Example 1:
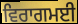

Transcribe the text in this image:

ਵਿਰਾਗਮਈ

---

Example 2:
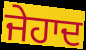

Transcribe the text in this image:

ਜੇਹਾਦ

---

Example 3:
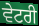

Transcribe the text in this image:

ਵੇਟਰੀ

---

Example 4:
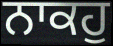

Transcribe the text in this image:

ਨਾਕਹੁ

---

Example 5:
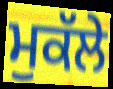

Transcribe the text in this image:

ਮੁਕੱਲੇ